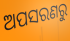
ଅପସରଣରୁ